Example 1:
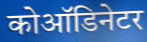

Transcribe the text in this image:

कोऑडिनेटर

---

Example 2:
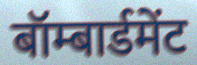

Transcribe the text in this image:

बॉम्बार्डमेंट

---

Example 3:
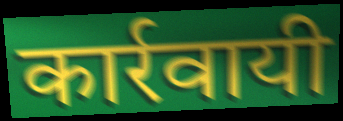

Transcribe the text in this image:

कार्रवायी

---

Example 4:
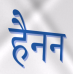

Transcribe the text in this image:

हैनन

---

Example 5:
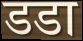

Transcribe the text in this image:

डडा